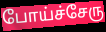
போய்ச்சேரு